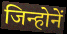
जिन्होनें